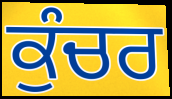
ਕੁੰਚਰ